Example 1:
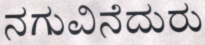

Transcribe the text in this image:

ನಗುವಿನೆದುರು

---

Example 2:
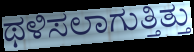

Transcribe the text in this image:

ಥಳಿಸಲಾಗುತ್ತಿತ್ತು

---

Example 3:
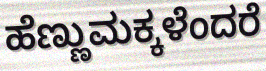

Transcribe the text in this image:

ಹೆಣ್ಣುಮಕ್ಕಳೆಂದರೆ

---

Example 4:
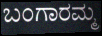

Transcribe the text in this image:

ಬಂಗಾರಮ್ಮ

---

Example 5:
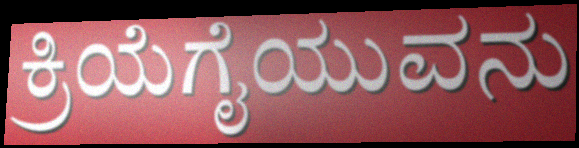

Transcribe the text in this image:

ಕ್ರಿಯೆಗೈಯುವನು